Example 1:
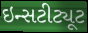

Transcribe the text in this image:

ઇન્સટીટ્યૂટ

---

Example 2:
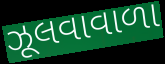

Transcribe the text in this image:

ઝૂલવાવાળા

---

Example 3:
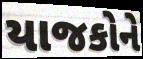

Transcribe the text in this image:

યાજકોને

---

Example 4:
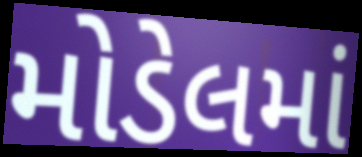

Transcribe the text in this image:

મોડેલમાં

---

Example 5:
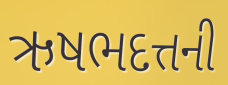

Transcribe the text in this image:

ઋષભદત્તની